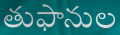
తుఫానుల